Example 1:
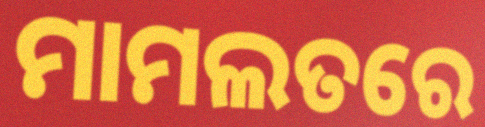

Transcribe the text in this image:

ମାମଲତରେ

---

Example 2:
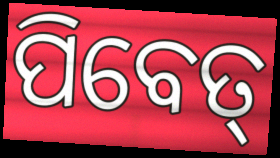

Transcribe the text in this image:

ପିବେତ୍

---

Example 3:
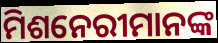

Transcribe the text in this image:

ମିଶନେରୀମାନଙ୍କ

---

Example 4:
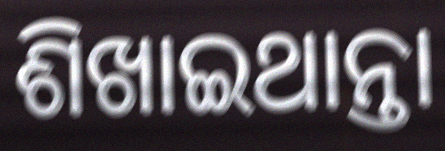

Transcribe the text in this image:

ଶିଖାଇଥାନ୍ତା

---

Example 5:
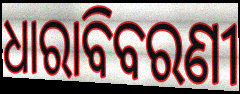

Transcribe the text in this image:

ଧାରାବିବରଣୀ